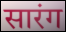
सारंग